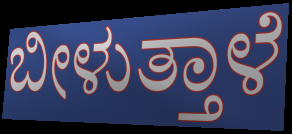
ಬೀಳುತ್ತಾಳೆ